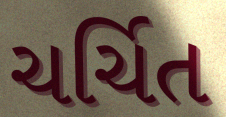
ચર્ચિત